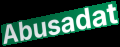
Abusadat